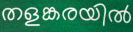
തളങ്കരയിൽ